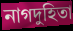
নাগদুহিতা